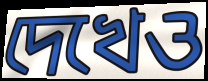
দেখেও